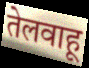
तेलवाहू